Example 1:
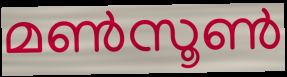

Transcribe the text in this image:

മൺസൂൺ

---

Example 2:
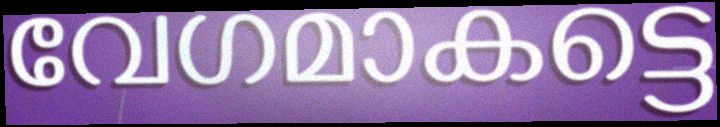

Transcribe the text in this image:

വേഗമാകട്ടെ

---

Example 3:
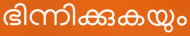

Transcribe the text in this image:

ഭിന്നിക്കുകയും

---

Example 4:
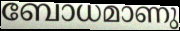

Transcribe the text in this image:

ബോധമാണു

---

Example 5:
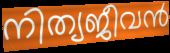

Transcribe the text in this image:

നിത്യജീവൻ